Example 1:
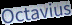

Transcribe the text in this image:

Octavius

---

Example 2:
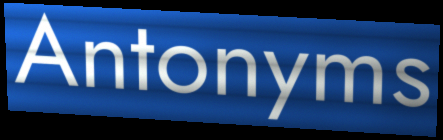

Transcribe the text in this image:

Antonyms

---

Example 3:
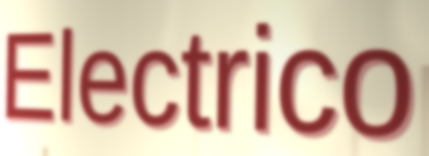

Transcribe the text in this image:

Electrico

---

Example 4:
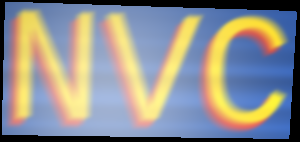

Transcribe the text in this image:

NVC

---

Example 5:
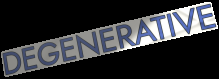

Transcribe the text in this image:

DEGENERATIVE